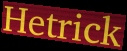
Hetrick